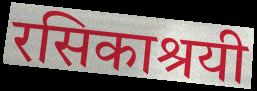
रसिकाश्रयी